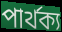
পার্থক্য